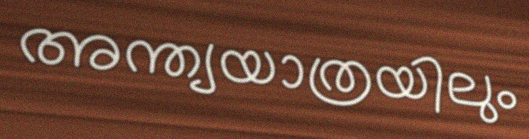
അന്ത്യയാത്രയിലും